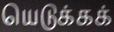
யெடுக்கக்